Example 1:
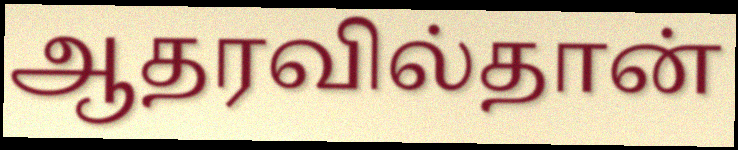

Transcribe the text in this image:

ஆதரவில்தான்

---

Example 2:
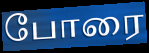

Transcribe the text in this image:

போரை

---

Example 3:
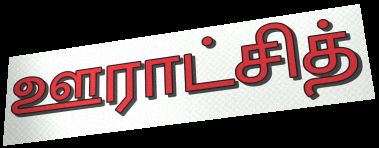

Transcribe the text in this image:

ஊராட்சித்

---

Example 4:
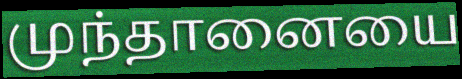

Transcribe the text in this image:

முந்தானையை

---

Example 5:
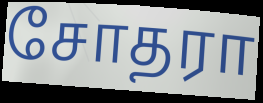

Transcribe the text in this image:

சோதரா